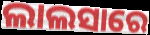
ଲାଲସାରେ